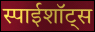
स्पाईशॉट्स